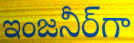
ఇంజనీర్‌గా